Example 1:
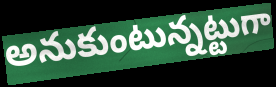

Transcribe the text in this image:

అనుకుంటున్నట్టుగా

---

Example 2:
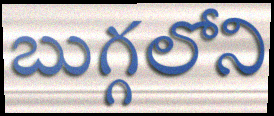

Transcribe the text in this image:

బుగ్గలోని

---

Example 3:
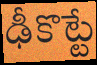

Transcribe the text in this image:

ఢీకొట్టే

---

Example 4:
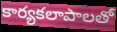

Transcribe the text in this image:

కార్యకలాపాలతో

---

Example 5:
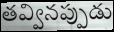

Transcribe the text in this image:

తవ్వినప్పుడు